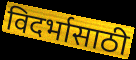
विदर्भासाठी